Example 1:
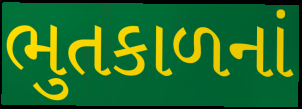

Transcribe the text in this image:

ભુતકાળનાં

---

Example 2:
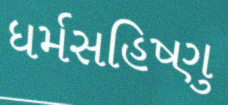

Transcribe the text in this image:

ધર્મસહિષ્ણુ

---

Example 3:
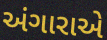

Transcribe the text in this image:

અંગારાએ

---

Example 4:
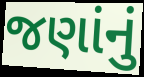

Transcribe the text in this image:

જણાંનું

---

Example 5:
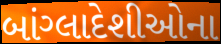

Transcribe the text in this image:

બાંગ્લાદેશીઓના